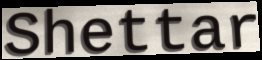
Shettar